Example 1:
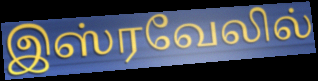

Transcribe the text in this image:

இஸ்ரவேலில்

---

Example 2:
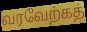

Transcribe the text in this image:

வரவேற்கத்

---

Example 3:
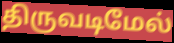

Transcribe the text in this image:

திருவடிமேல்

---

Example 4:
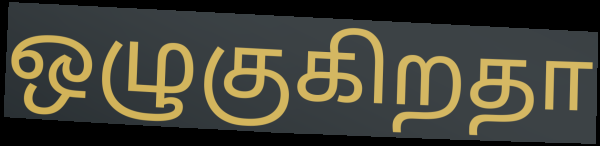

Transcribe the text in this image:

ஒழுகுகிறதா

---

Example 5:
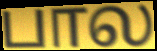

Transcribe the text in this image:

பால